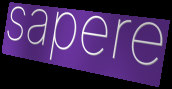
sapere